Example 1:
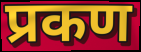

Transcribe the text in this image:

प्रकण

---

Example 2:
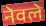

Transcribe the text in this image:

नेवले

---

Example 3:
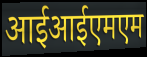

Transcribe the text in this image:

आईआईएमएम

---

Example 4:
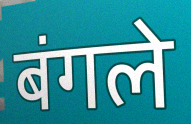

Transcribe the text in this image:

बंगले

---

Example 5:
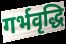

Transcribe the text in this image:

गर्भवृद्धि